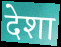
देशा